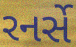
રનર્સે